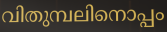
വിതുമ്പലിനൊപ്പം